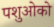
पशुओको